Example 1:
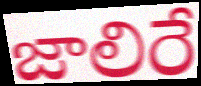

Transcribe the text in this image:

జాలిరే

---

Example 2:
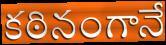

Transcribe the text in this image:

కఠినంగానే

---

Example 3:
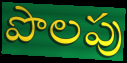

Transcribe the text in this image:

పొలపు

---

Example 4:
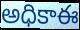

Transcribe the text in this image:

అధికాఈ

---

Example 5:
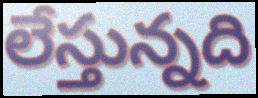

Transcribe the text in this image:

లేస్తున్నది